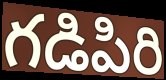
గడిపిరి